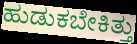
ಹುಡುಕಬೇಕಿತ್ತು